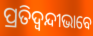
ପ୍ରତିଦ୍ୱନ୍ଦୀଭାବେ